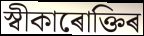
স্বীকাৰোক্তিৰ